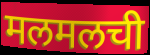
मलमलची